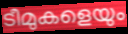
ടീമുകളെയും